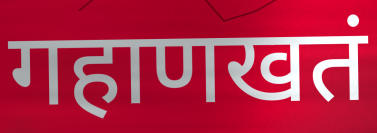
गहाणखतं